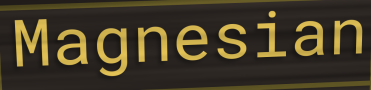
Magnesian